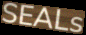
SEALs